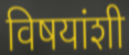
विषयांशी